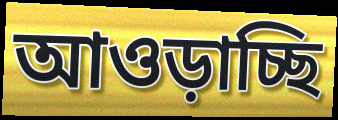
আওড়াচ্ছি